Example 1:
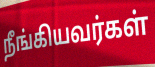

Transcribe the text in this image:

நீங்கியவர்கள்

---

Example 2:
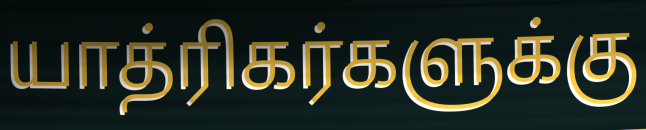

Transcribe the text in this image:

யாத்ரிகர்களுக்கு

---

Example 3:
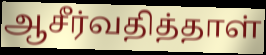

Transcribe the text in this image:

ஆசீர்வதித்தாள்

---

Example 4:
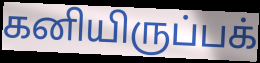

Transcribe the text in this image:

கனியிருப்பக்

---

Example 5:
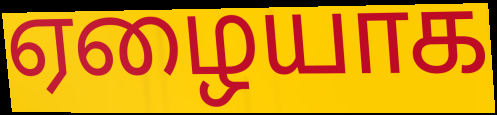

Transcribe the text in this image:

ஏழையாக